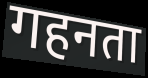
गहनता